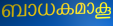
ബാധകമാകൂ